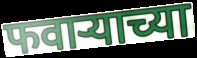
फवाऱ्याच्या